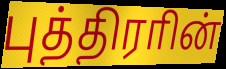
புத்திரரின்